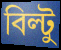
বিল্টু